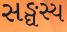
સઙ્ઘસ્ય